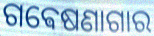
ଗଵେଷଣାଗାର